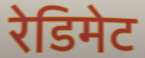
रेडिमेट